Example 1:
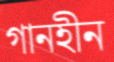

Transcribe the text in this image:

গানহীন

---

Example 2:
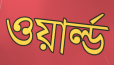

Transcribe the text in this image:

ওয়ার্ল্ড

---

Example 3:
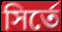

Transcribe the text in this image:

সির্তে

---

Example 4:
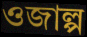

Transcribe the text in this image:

ওজাল্প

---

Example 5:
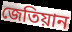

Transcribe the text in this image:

জেতিয়ান